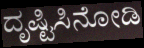
ದೃಷ್ಟಿಸಿನೋಡಿ